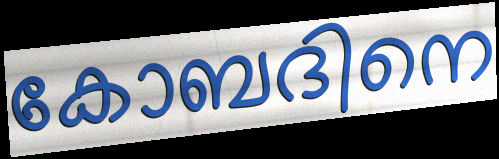
കോബദിനെ